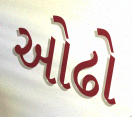
ઓઢો